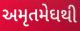
અમૃતમેઘથી